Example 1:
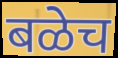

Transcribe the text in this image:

बळेच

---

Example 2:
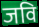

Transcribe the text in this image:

जवि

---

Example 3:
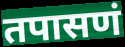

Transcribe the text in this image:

तपासणं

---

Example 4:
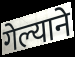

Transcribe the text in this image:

गेल्‍याने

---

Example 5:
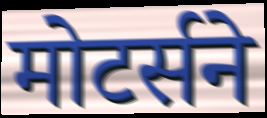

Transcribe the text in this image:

मोटर्सने